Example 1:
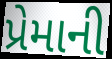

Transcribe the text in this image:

પ્રેમાની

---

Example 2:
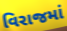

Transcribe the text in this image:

વિરાજમાં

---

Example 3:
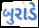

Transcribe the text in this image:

બુરાડે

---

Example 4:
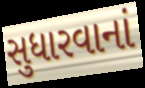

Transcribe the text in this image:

સુધારવાનાં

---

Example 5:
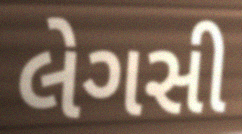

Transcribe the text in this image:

લેગસી